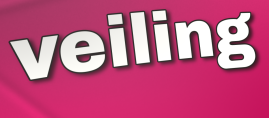
veiling